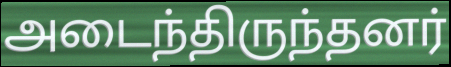
அடைந்திருந்தனர்